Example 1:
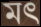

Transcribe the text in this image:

মৎ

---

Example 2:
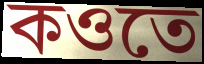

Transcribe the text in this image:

কওতে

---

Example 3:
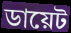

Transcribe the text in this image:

ডায়েট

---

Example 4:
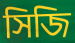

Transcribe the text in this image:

সিজি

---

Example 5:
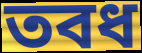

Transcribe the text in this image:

তবধ